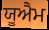
ਯੂਐਮ